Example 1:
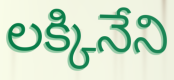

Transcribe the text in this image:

లక్కినేని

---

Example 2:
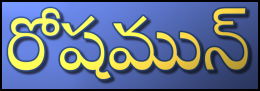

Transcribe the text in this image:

రోషమున్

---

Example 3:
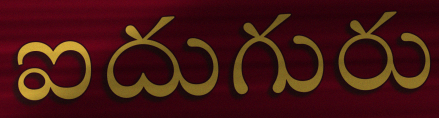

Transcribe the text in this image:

ఐదుగురు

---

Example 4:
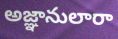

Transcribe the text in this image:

అజ్ఞానులారా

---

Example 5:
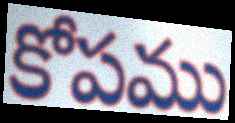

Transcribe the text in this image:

కోపము